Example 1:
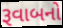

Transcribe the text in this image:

રૂવાબનો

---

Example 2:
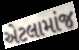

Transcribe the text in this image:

એટલામાંજ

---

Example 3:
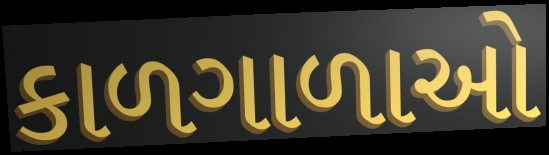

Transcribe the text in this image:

કાળગાળાઓ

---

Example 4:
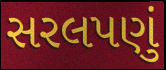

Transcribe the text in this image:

સરલપણું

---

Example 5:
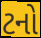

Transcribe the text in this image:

ટનો